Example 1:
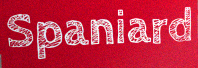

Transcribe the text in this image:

Spaniard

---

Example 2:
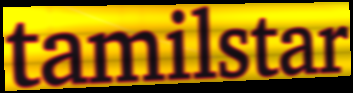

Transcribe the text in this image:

tamilstar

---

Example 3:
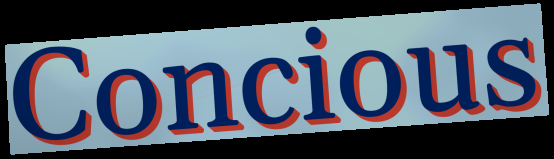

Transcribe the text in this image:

Concious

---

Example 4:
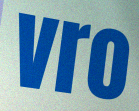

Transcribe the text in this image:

vro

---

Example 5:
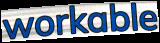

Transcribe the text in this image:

workable